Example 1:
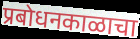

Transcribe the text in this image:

प्रबोधनकाळाचा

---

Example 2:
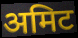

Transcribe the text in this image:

अमिट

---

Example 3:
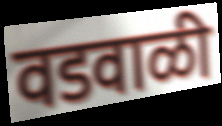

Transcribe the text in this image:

वडवाळी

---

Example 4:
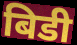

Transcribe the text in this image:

बिडी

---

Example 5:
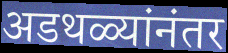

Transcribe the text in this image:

अडथळ्यांनंतर